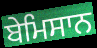
ਬੇਮਿਸਾਨ